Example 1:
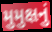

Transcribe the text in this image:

મુમુક્ષનું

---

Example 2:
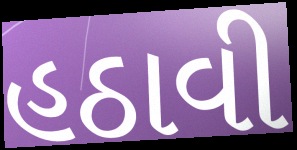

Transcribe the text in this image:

હઠાવી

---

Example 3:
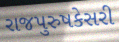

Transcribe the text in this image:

રાજપુરુષકેસરી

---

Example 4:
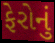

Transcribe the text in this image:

ફેરોનું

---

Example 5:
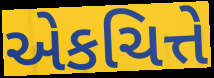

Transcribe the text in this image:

એકચિત્તે